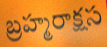
బ్రహ్మరాక్షస